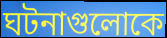
ঘটনাগুলোকে